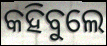
କହିବୁଲେ